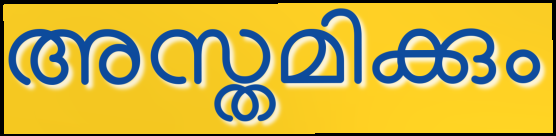
അസ്തമിക്കും